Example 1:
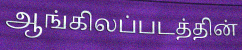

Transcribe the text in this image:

ஆங்கிலப்படத்தின்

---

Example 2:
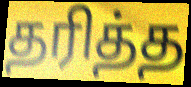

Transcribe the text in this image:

தரித்த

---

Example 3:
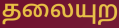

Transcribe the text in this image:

தலையுற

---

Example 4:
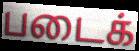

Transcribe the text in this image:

படைக்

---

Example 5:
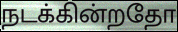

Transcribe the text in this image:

நடக்கின்றதோ